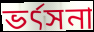
ভর্ৎসনা